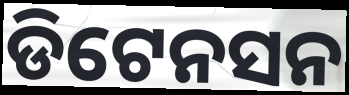
ଡିଟେନସନ